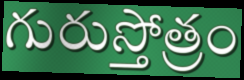
గురుస్తోత్రం